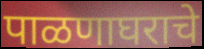
पाळणाघराचे